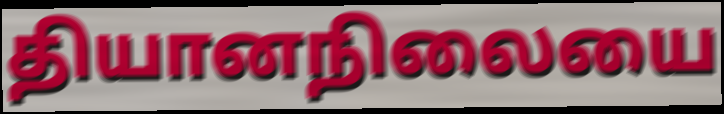
தியானநிலையை